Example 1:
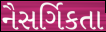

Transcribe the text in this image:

નૈસર્ગિકતા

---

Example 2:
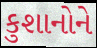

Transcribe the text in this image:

કુશાનોને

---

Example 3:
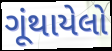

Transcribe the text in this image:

ગૂંથાયેલો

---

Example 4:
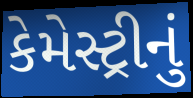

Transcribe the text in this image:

કેમેસ્ટ્રીનું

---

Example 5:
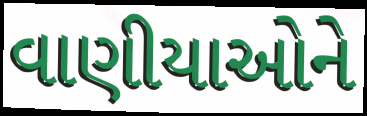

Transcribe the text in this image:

વાણીયાઓને